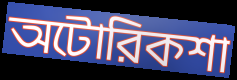
অটোরিকশা